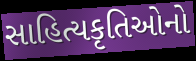
સાહિત્યકૃતિઓનો